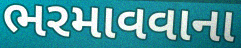
ભરમાવવાના